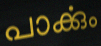
പാൎക്കും